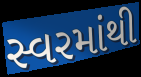
સ્વરમાંથી